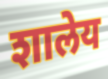
शालेय